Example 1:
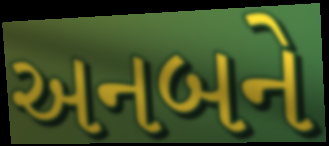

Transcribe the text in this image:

અનબને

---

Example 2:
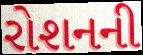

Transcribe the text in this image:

રોશનની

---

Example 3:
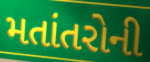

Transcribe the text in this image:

મતાંતરોની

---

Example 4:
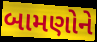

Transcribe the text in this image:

બામણોને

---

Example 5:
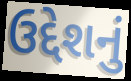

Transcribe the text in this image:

ઉદ્દેશનું